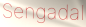
Sengadal